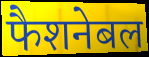
फैशनेबल